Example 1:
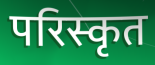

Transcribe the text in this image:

परिस्कृत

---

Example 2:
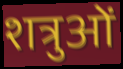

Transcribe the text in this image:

शत्रुओं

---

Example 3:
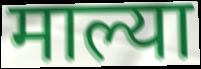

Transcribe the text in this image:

माल्या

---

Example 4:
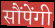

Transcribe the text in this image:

सौंपेंगी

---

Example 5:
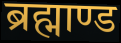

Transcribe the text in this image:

ब्रह्माण्ड